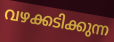
വഴക്കടിക്കുന്ന